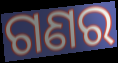
ଗଣର